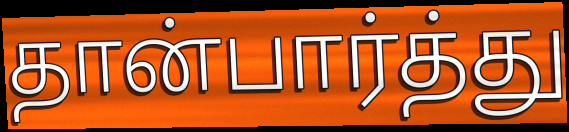
தான்பார்த்து